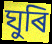
ঘুৰি